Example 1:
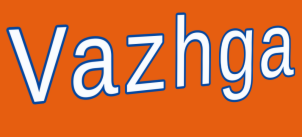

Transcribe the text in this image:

Vazhga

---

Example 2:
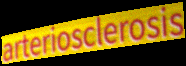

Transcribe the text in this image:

arteriosclerosis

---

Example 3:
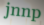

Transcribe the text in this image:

jnnp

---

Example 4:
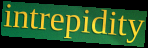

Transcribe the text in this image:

intrepidity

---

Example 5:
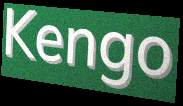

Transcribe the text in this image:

Kengo